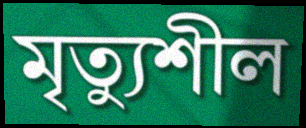
মৃত্যুশীল